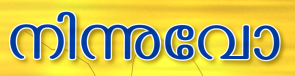
നിന്നുവോ